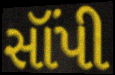
સૉંપી